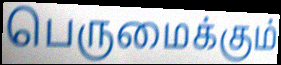
பெருமைக்கும்